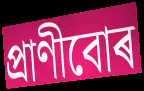
প্ৰাণীবোৰ